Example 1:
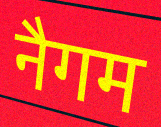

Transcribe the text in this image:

नैगम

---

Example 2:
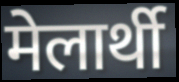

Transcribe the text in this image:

मेलार्थी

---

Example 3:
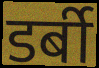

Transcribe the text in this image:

डर्बी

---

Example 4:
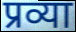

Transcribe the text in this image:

प्रव्या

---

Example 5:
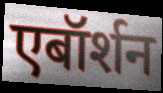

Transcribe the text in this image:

एबॉर्शन